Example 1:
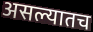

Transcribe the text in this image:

असल्यातच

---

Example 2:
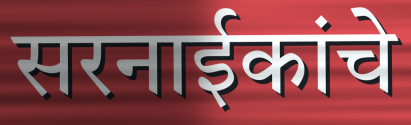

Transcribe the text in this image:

सरनाईकांचे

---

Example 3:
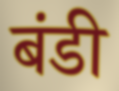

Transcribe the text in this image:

बंडी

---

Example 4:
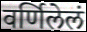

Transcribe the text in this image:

वर्णिलेलं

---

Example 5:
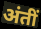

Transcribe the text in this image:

अंतीं